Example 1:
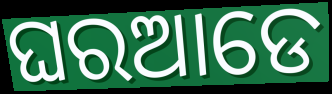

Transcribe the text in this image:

ଘରଆଡେ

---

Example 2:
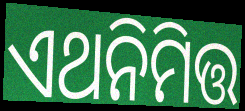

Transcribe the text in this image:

ଏଥନିମିତ୍ତ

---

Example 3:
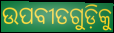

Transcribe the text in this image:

ଉପବୀତଗୁଡ଼ିକୁ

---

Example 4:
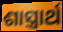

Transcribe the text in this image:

ଶାସ୍ତ୍ରାର୍ଥ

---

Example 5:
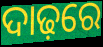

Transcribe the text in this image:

ଦାଢ଼ରେ